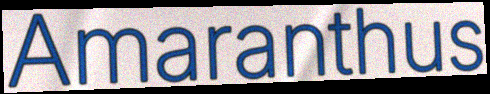
Amaranthus